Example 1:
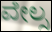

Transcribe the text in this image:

ವೇಲ್ಸ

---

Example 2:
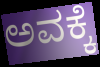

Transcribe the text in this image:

ಅವಕ್ಕೆ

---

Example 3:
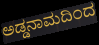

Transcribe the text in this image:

ಅಡ್ಡನಾಮದಿಂದ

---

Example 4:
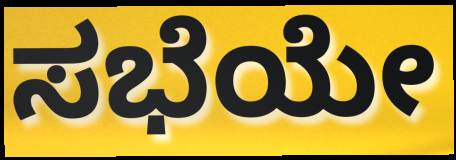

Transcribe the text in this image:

ಸಭೆಯೇ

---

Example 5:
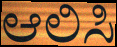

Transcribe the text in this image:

ಆಲಿಸಿ